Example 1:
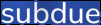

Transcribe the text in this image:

subdue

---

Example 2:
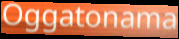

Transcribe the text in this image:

Oggatonama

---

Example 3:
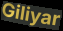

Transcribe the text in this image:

Giliyar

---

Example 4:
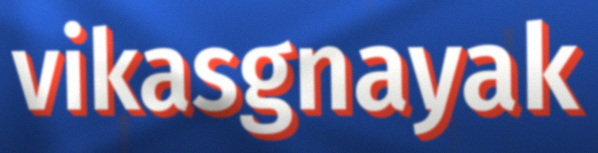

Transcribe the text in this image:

vikasgnayak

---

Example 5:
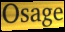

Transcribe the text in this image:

Osage